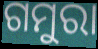
ଗମୁରା